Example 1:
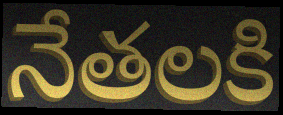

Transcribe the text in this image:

నేతలకి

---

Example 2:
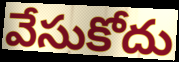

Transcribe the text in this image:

వేసుకోదు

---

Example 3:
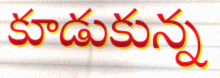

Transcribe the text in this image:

కూడుకున్న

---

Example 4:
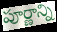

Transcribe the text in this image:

పూర్ణాన్ని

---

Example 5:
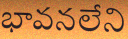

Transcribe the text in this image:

భావనలేని